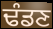
ਢੰਡਣ